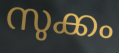
സുക്കം